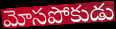
మోసపోకుడు